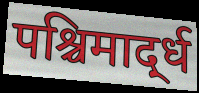
पश्चिमार्द्ध